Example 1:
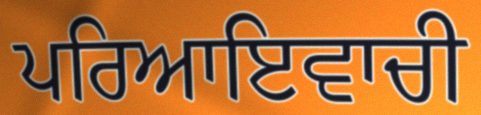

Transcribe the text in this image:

ਪਰਿਆਇਵਾਚੀ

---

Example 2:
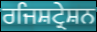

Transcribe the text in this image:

ਰਜਿਸ਼ਟ੍ਰੇਸ਼ਨ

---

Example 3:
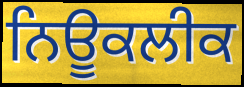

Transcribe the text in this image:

ਨਿਊਕਲੀਕ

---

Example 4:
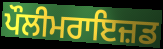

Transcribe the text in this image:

ਪੌਲੀਮਰਾਇਜ਼ਡ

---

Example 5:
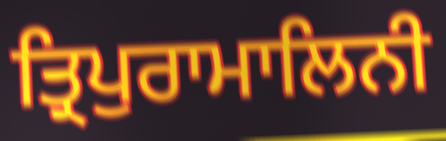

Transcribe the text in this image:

ਤ੍ਰਿਪੁਰਾਮਾਲਿਨੀ